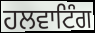
ਹਲਵਾਟਿੰਗ